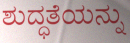
ಶುದ್ಧತೆಯನ್ನು